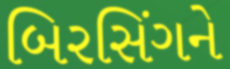
બિરસિંગને